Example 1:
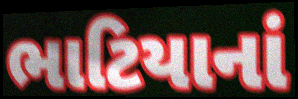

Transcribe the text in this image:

ભાટિયાનાં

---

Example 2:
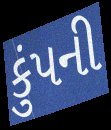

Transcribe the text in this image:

કુંપની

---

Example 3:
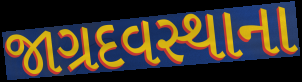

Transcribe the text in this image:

જાગ્રદવસ્થાના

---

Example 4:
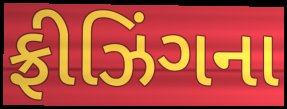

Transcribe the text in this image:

ફ્રીઝિંગના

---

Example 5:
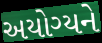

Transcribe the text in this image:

અયોગ્યને